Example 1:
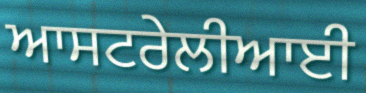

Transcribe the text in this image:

ਆਸਟਰੇਲੀਆਈ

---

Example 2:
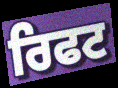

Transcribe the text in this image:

ਰਿਫਟ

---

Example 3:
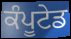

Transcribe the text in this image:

ਕੰਪੂਟੇਡ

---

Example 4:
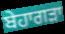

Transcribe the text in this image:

ਬੇਹਾਗੜਾ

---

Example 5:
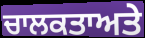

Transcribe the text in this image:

ਚਾਲਕਤਾਅਤੇ